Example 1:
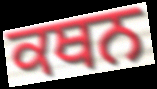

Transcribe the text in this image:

ਕਥਨ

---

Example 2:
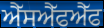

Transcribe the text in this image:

ਐੱਸਐੱਫਐੱਫ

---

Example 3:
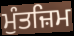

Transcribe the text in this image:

ਮੁੰਤਜ਼ਿਮ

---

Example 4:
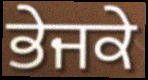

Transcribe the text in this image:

ਭੇਜਕੇ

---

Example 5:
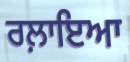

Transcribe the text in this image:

ਰਲ਼ਾਇਆ